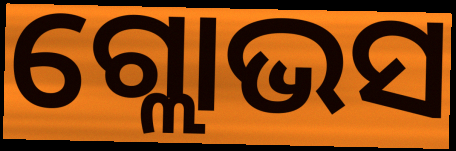
ଗ୍ଲୋଭସ